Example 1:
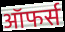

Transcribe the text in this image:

ऑफर्स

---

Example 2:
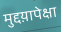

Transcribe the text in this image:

मुद्दय़ापेक्षा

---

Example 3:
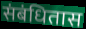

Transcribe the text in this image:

संबंधितास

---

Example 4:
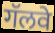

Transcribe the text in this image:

गॅलवे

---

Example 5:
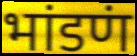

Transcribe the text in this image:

भांडणं